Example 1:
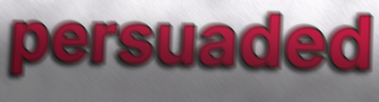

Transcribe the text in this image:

persuaded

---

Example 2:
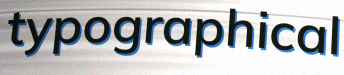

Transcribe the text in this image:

typographical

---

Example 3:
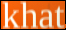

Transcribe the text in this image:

khat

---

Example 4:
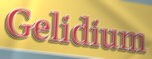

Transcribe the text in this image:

Gelidium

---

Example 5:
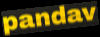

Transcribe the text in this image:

pandav